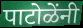
पाटोळेंनी